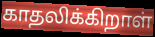
காதலிக்கிறாள்